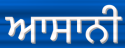
ਆਸਾਨੀ